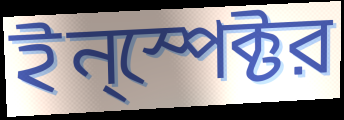
ইন্‌স্পেক্টর